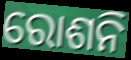
ରୋଶନି